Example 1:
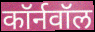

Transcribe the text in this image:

कॉर्नवॉल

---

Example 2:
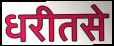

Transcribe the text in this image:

धरीतसे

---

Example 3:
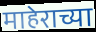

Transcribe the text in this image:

माहेराच्या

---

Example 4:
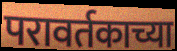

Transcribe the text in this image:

परावर्तकाच्या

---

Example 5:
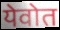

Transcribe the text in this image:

येवोत